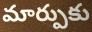
మార్పుకు